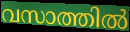
വസാത്തിൽ